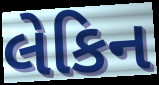
લેકિન